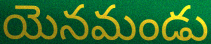
యెనమండు